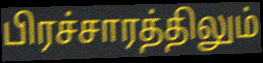
பிரச்சாரத்திலும்